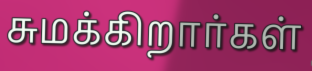
சுமக்கிறார்கள்